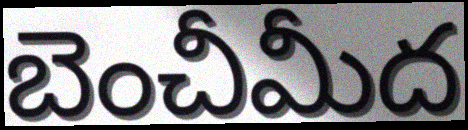
బెంచీమీద